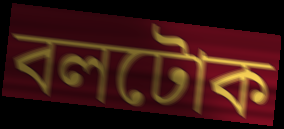
বলটোক